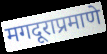
मगदूराप्रमाणे